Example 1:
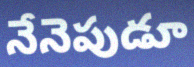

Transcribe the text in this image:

నేనెపుడూ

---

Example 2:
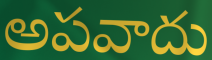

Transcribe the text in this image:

అపవాదు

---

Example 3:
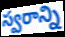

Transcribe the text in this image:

స్వరాన్ని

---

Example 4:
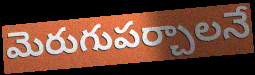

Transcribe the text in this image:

మెరుగుపర్చాలనే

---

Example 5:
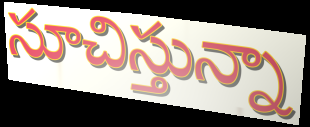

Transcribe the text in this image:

సూచిస్తున్నా